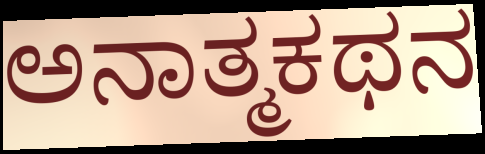
ಅನಾತ್ಮಕಥನ